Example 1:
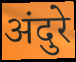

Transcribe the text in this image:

अंदुरे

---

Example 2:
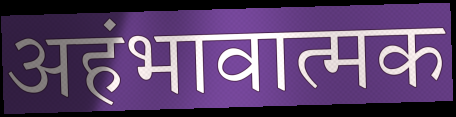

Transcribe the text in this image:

अहंभावात्मक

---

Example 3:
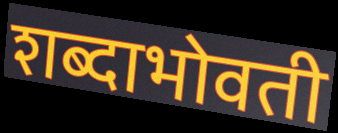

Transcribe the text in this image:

शब्दाभोवती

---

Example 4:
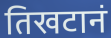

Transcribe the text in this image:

तिखटानं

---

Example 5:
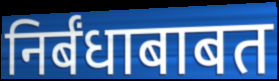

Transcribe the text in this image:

निर्बंधाबाबत